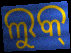
ଲୁକ୍